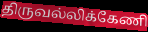
திருவல்லிக்கேணி